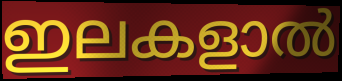
ഇലകളാൽ